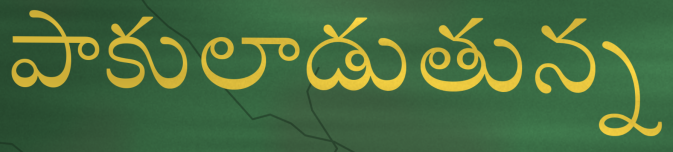
పాకులాడుతున్న